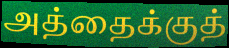
அத்தைக்குத்